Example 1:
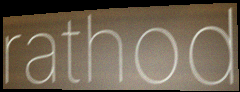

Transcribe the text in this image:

rathod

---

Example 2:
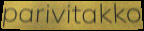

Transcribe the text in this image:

parivitakko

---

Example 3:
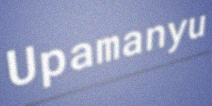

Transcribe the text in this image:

Upamanyu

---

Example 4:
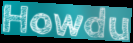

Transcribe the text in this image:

Howdu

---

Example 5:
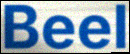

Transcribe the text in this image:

Beel